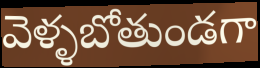
వెళ్ళబోతుండగా